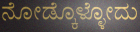
ನೋಡ್ಕೊಳ್ಳೋದು